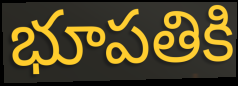
భూపతికి